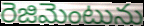
రెజిమెంటును